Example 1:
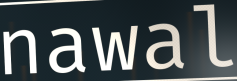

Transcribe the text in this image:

nawal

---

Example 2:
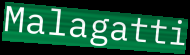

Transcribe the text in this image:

Malagatti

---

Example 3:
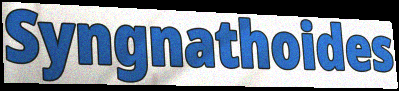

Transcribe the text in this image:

Syngnathoides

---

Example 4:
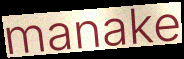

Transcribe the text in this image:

manake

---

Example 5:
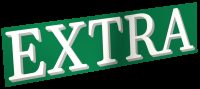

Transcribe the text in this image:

EXTRA